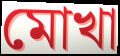
মোখা